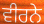
ਵੀਰਨੇ